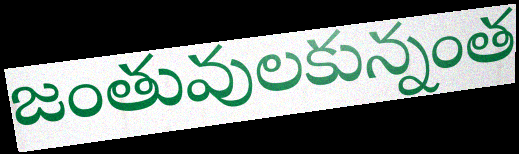
జంతువులకున్నంత